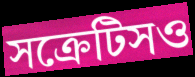
সক্রেটিসও